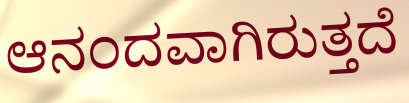
ಆನಂದವಾಗಿರುತ್ತದೆ